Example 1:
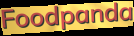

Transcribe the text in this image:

Foodpanda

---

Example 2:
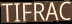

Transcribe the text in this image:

TIFRAC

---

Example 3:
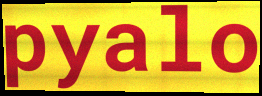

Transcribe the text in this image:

pyalo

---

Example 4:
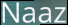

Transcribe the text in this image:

Naaz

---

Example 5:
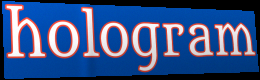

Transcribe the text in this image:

hologram